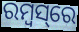
ରମ୍ବସ୍‌ରେ